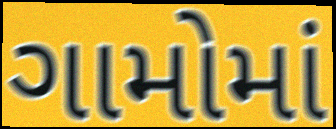
ગામોમાં